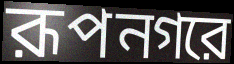
রূপনগরে